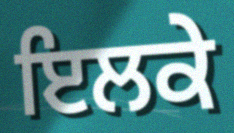
ਇਲਕੇ